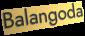
Balangoda